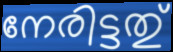
നേരിട്ടതു്